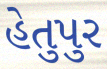
હેતુપુર